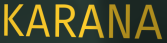
KARANA